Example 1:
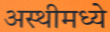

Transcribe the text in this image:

अस्थीमध्ये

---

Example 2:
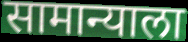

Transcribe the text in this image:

सामान्याला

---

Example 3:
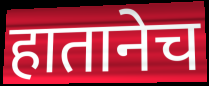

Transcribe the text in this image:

हातानेच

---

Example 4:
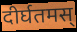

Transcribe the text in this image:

दीर्घतमस्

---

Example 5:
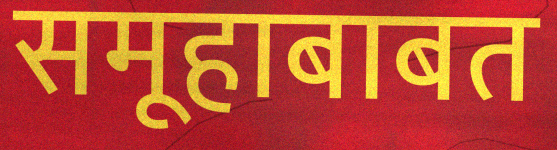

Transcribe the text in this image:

समूहाबाबत